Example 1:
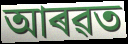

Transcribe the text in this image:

আৰৱত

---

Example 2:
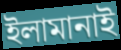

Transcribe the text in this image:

ইলামানাই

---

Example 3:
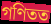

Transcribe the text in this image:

গণিতত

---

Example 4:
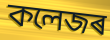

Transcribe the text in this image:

কলেজৰ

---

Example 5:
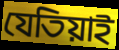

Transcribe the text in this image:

যেতিয়াই